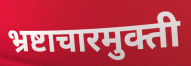
भ्रष्टाचारमुक्ती